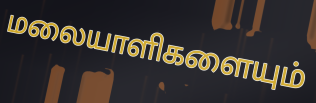
மலையாளிகளையும்